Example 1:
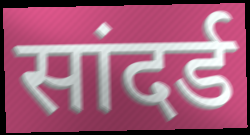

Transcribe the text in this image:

सांदर्ड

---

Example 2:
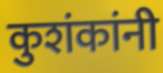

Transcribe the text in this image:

कुशंकांनी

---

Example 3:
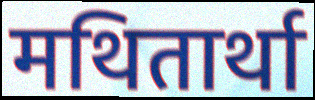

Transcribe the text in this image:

मथितार्था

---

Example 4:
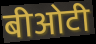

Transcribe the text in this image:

बीओटी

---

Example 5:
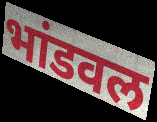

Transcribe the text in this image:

भांडवल